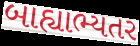
બાહ્યાભ્યતર